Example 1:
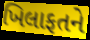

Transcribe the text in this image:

ખિલાફતને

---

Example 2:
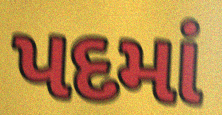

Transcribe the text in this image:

પદમાં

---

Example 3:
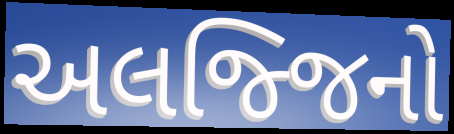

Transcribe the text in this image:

અલજ્જિનો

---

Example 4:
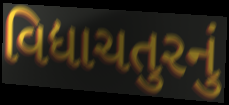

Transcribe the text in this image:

વિદ્યાચતુરનું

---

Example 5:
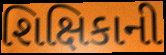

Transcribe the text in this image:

શિક્ષિકાની